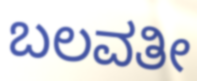
ಬಲವತೀ